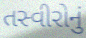
તસ્વીરોનું